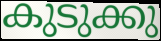
കുടുക്കു